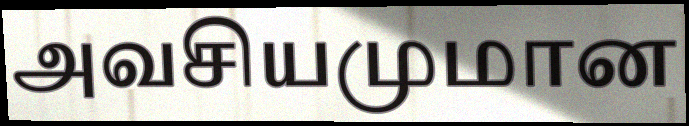
அவசியமுமான